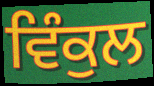
ਵਿੰਕੁਲ